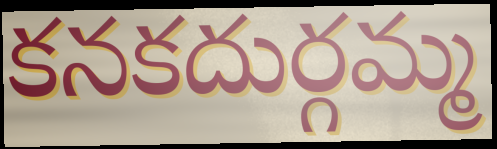
కనకదుర్గమ్మ